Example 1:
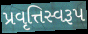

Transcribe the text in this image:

પ્રવૃત્તિસ્વરૂપ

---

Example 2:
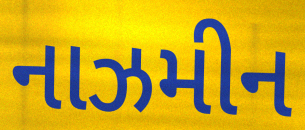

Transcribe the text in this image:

નાઝમીન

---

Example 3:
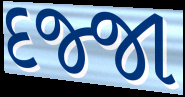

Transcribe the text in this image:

દજ્જા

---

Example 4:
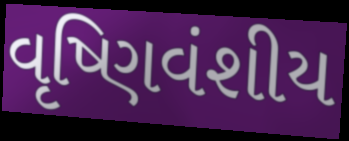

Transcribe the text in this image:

વૃષ્ણિવંશીય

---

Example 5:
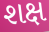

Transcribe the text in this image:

શક્ષ